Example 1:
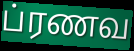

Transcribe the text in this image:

ப்ரணவ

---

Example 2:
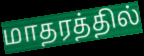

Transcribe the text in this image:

மாதரத்தில்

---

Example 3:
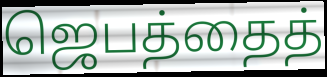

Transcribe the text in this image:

ஜெபத்தைத்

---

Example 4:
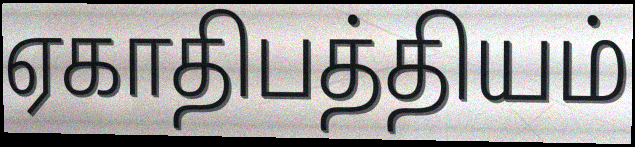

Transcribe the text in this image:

ஏகாதிபத்தியம்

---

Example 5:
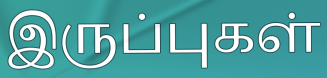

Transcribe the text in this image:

இருப்புகள்